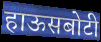
हाऊसबोटी